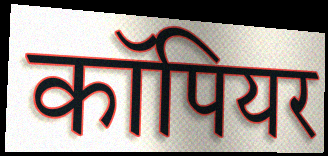
कॉपियर